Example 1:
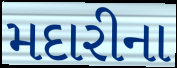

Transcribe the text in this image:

મદારીના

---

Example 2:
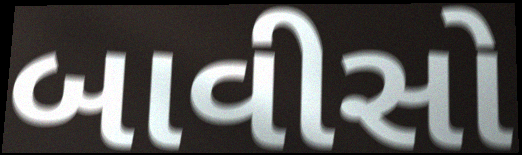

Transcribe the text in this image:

બાવીસો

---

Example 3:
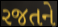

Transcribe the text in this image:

રજતને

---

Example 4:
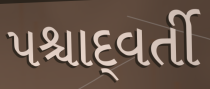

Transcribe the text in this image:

પશ્ચાદ્‌વર્તી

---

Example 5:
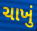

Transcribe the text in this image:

ચાખું